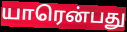
யாரென்பது